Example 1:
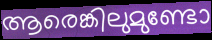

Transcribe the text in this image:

ആരെങ്കിലുമുണ്ടോ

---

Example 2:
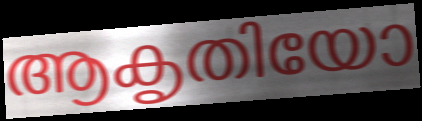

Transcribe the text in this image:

ആകൃതിയോ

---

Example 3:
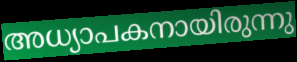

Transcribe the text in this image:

അധ്യാപകനായിരുന്നു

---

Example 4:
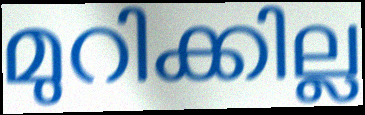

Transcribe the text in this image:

മുറിക്കില്ല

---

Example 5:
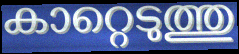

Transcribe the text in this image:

കാറ്റെടുത്തു